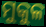
ମୁକୁଳ